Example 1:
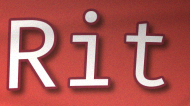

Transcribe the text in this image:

Rit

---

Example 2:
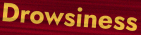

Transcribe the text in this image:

Drowsiness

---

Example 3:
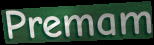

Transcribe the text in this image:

Premam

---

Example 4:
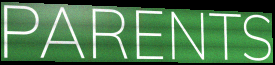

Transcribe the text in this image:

PARENTS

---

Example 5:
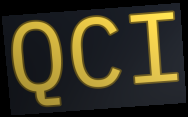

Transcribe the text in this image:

QCI